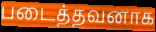
படைத்தவனாக